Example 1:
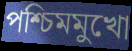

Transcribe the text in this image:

পশ্চিমমুখো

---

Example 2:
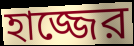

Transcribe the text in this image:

হাজ্জের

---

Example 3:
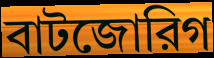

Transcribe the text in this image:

বাটজোরিগ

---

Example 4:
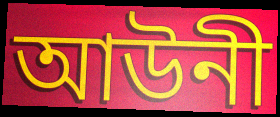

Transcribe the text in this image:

আউনী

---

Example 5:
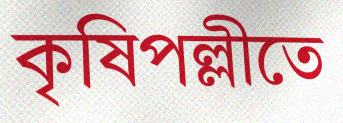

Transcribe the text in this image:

কৃষিপল্লীতে